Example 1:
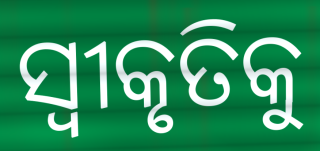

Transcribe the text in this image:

ସ୍ୱୀକୃତିକୁ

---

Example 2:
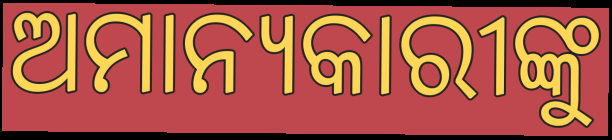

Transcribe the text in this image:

ଅମାନ୍ୟକାରୀଙ୍କୁ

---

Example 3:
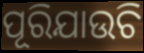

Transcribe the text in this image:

ପୂରିଯାଉଚି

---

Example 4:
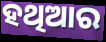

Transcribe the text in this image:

ହଥିଆର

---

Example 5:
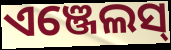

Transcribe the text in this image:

ଏଞ୍ଜେଲସ୍